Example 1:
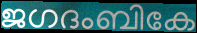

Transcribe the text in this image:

ജഗദംബികേ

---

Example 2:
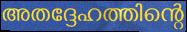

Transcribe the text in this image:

അതദ്ദേഹത്തിന്റെ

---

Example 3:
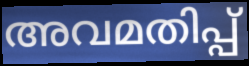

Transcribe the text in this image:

അവമതിപ്പ്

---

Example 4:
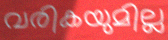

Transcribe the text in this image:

വരികയുമില്ല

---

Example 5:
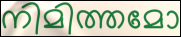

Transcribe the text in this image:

നിമിത്തമോ